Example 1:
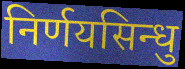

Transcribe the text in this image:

निर्णयसिन्धु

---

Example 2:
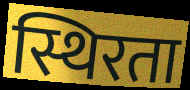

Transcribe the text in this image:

स्थिरता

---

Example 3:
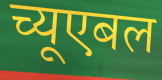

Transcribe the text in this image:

च्यूएबल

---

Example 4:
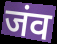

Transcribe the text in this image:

जंव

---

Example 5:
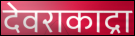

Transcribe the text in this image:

देवराकाद्रा